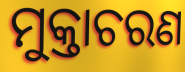
ମୁକ୍ତାଚରଣ